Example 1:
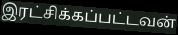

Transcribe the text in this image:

இரட்சிக்கப்பட்டவன்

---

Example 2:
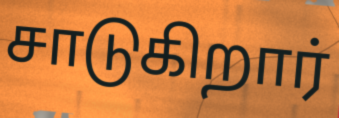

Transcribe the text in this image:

சாடுகிறார்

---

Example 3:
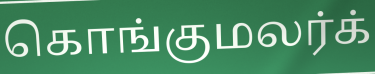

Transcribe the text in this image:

கொங்குமலர்க்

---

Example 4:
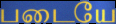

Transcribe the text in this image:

படையே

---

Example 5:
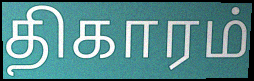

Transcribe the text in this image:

திகாரம்